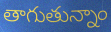
తాగుతున్నాం